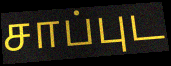
சாப்புட